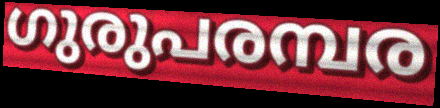
ഗുരുപരമ്പര